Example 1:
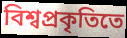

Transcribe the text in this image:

বিশ্বপ্রকৃতিতে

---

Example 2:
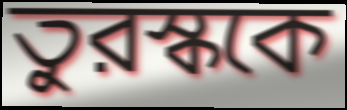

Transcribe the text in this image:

তুরস্ককে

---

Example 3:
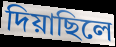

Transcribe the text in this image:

দিয়াছিলে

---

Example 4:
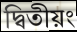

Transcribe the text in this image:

দ্বিতীয়ং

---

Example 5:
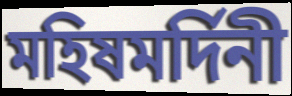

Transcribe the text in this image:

মহিষমর্দিনী